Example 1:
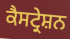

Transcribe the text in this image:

ਕੈਸਟ੍ਰੇਸ਼ਨ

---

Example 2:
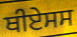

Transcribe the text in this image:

ਥੀਏਸਸ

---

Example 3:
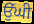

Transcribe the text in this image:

ਉੱਘੀ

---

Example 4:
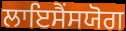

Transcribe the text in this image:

ਲਾਇਸੈਂਸਯੋਗ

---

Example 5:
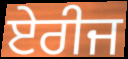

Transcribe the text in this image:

ਏਰੀਜ